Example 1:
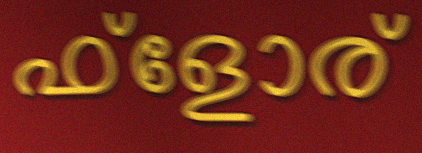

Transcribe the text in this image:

ഫ്ളോര്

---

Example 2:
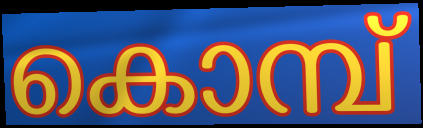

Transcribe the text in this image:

കൊമ്പ്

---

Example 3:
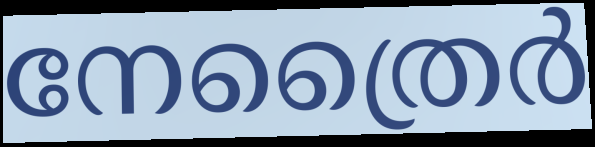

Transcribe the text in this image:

നേത്രൈർ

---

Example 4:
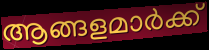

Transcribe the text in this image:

ആങ്ങളമാർക്ക്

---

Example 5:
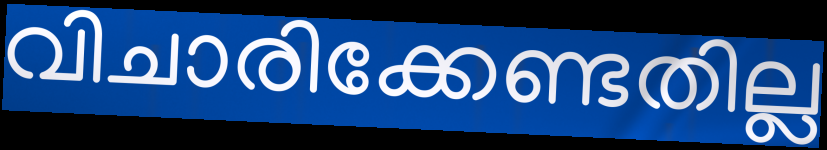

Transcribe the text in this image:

വിചാരിക്കേണ്ടതില്ല